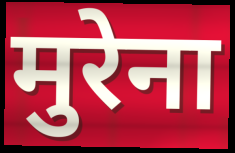
मुरेना